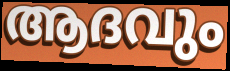
ആദവും